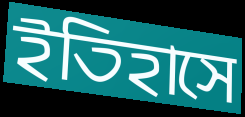
ইতিহাসে